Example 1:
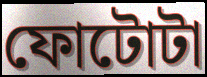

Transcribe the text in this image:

ফোটোটা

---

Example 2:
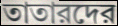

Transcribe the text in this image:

তাতারদের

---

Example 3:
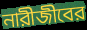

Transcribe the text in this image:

নারীজীবের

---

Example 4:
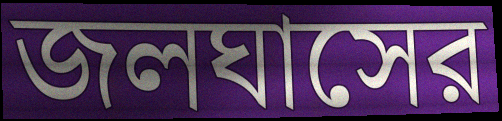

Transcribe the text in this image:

জলঘাসের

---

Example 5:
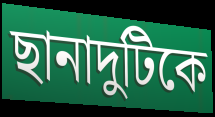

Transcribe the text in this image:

ছানাদুটিকে